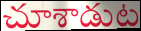
చూశాడుట